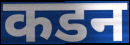
कडन